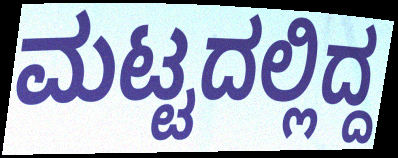
ಮಟ್ಟದಲ್ಲಿದ್ದ